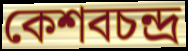
কেশবচন্দ্র